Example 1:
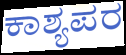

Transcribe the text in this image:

ಕಾಶ್ಯಪರ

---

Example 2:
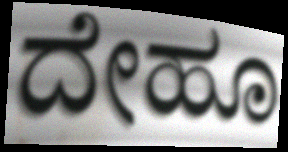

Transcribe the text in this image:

ದೇಹೂ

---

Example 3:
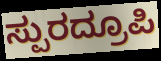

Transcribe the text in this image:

ಸ್ಪುರದ್ರೂಪಿ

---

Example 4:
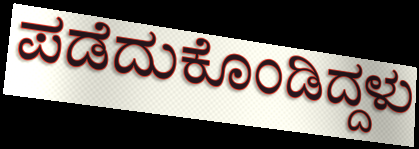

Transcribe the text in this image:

ಪಡೆದುಕೊಂಡಿದ್ದಳು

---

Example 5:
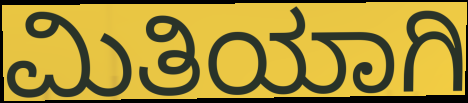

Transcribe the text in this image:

ಮಿತಿಯಾಗಿ